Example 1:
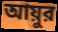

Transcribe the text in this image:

আয়ুর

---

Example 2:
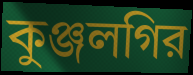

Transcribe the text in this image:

কুঞ্জলগির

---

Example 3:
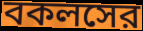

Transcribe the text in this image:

বকলসের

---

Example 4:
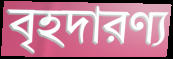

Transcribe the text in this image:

বৃহদারণ্য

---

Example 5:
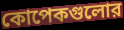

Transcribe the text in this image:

কোপেকগুলোর